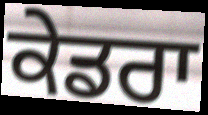
ਕੇਡਰਾ